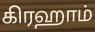
கிரஹாம்